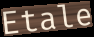
Etale